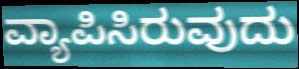
ವ್ಯಾಪಿಸಿರುವುದು